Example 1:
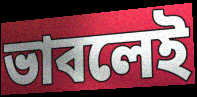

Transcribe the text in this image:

ভাবলেই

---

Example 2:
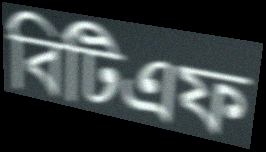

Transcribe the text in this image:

বিটিএফ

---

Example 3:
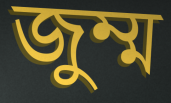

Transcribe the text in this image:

জুম্ম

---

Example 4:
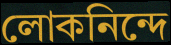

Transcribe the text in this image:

লোকনিন্দে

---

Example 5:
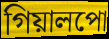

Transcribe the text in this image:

গিয়ালপো